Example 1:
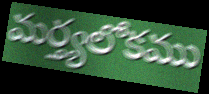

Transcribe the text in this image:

మర్త్యలోకము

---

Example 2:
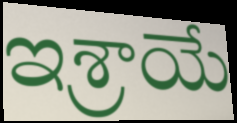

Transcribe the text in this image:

ఇశ్రాయే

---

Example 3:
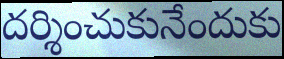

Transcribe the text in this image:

దర్శించుకునేందుకు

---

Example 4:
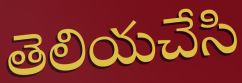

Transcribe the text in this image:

తెలియచేసి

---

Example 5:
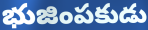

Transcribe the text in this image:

భుజింపకుడు